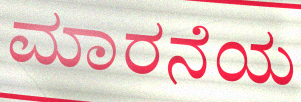
ಮಾರನೆಯ